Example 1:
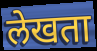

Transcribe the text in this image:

लेखता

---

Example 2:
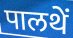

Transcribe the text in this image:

पालथें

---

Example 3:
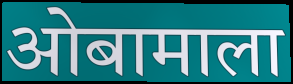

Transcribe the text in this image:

ओबामाला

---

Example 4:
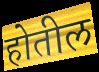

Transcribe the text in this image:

होतील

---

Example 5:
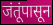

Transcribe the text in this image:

जंतूंपासून